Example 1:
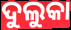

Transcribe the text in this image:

ଦୁଲୁକା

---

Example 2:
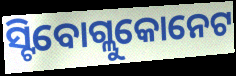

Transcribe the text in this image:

ସ୍ଟିବୋଗ୍ଲୁକୋନେଟ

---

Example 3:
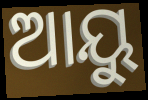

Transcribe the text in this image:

ଆୟୁ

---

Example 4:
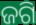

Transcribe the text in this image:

ଜଗି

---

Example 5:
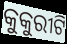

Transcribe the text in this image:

କୁକୁରୀଟି